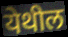
येथील